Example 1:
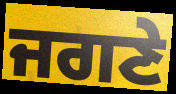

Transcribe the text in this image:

ਜਗਣੇ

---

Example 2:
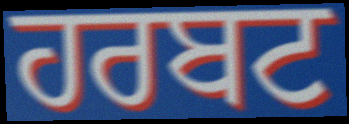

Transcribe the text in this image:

ਹਰਬਟ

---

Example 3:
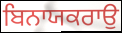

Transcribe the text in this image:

ਬਿਨਾਯਕਰਾਉ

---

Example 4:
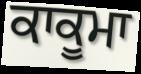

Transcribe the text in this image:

ਕਾਕੂਮਾ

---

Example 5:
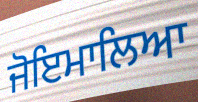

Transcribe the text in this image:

ਜੋਇਮਾਲਿਆ